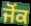
ਜੋਂਕ